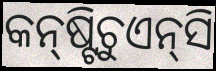
କନ୍‍ଷ୍ଟିଚୁଏନ୍‍ସି